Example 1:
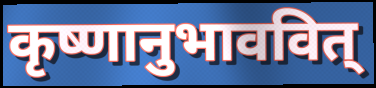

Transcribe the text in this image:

कृष्णानुभाववित्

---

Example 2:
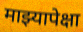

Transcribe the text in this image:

माझ्यापेक्षा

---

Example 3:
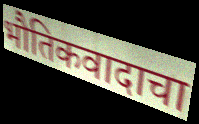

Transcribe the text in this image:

भौतिकवादाचा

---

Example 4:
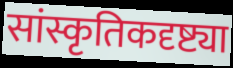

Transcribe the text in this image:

सांस्कृतिकदृष्ट्या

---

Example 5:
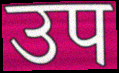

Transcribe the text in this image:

उप